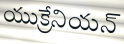
యుక్రేనియన్